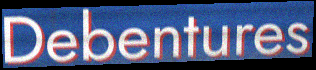
Debentures